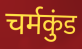
चर्मकुंड